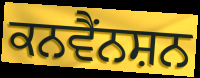
ਕਨਵੈਂਨਸ਼ਨ